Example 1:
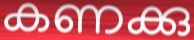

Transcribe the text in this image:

കണക്കു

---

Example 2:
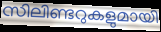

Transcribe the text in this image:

സിലിണ്ടറുകളുമായി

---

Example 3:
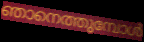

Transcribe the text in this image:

ഞാനെത്തുമ്പോൾ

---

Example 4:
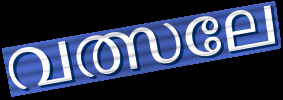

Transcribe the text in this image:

വത്സലേ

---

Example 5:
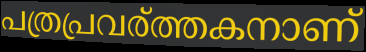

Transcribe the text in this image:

പത്രപ്രവര്ത്തകനാണ്